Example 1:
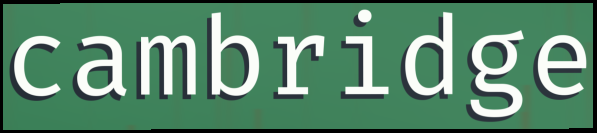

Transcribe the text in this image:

cambridge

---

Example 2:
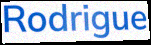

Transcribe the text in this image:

Rodrigue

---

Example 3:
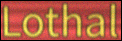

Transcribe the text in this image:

Lothal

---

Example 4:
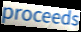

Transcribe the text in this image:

proceeds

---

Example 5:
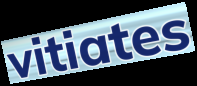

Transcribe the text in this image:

vitiates